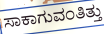
ಸಾಕಾಗುವಂತಿತ್ತು